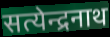
सत्येन्द्रनाथ